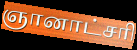
ஞானாட்சரி